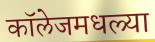
कॉलेजमधल्या